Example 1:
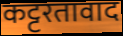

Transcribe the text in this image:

कट्टरतावाद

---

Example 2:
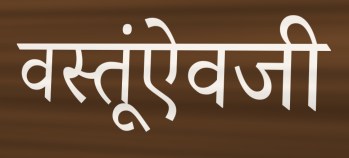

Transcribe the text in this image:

वस्तूंऐवजी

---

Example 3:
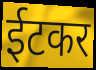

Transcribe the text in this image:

ईटकर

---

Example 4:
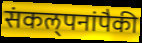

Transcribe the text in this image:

संकल्पनांपैकी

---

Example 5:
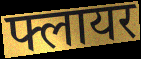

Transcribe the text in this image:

फ्लायर